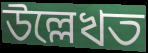
উল্লেখত